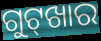
ଗୁଟ୍‌ଖାର